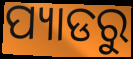
ପ୍ୟାଡରୁ